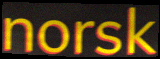
norsk